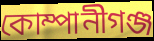
কোম্পানীগঞ্জ